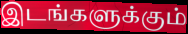
இடங்களுக்கும்